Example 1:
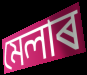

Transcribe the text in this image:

মেলাৰ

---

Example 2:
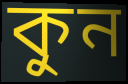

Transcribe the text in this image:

কুন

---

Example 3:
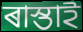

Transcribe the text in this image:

ৰাস্তাই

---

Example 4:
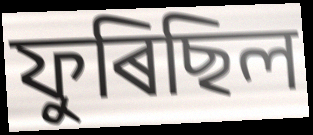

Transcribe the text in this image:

ফুৰিছিল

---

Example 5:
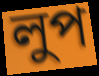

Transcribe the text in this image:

লুপ